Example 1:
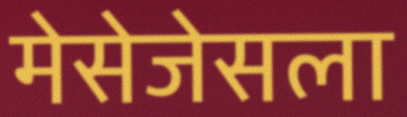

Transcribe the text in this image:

मेसेजेसला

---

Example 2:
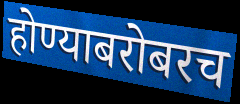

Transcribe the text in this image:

होण्याबरोबरच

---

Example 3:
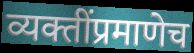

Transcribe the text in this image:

व्यक्तींप्रमाणेच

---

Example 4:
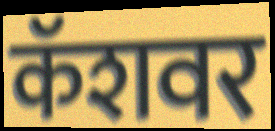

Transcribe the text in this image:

कॅशवर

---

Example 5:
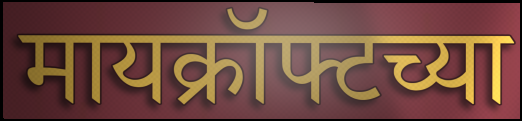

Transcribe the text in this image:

मायक्रॉफ्टच्या